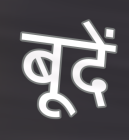
बूदें